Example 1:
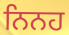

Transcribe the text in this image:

ਨਿਨਹ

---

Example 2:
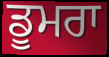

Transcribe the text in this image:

ਡੂਮਰਾ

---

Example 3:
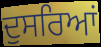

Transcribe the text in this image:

ਦੁਸਰਿਆਂ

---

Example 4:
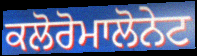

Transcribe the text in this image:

ਕਲੋਰੋਮਾਲੋਨੇਟ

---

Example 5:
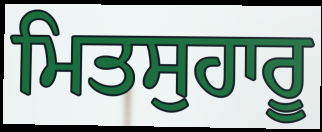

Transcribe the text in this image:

ਮਿਤਸੁਹਾਰੂ